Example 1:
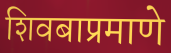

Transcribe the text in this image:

शिवबाप्रमाणे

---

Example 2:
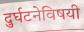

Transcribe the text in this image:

दुर्घटनेविषयी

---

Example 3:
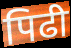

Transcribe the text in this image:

पिढी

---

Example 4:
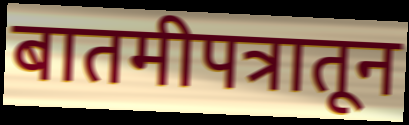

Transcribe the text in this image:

बातमीपत्रातून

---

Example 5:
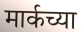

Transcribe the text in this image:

मार्कच्या